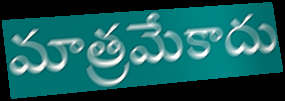
మాత్రమేకాదు